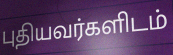
புதியவர்களிடம்